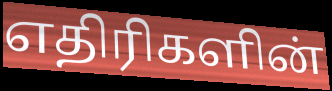
எதிரிகளின்